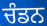
ਚੰਡਨ